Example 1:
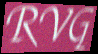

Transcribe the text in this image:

RVG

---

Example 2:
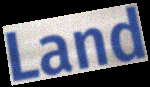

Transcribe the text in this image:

Land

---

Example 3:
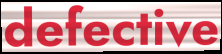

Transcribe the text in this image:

defective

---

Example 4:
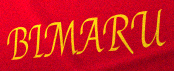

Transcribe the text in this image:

BIMARU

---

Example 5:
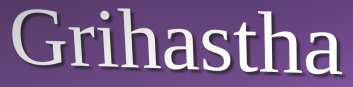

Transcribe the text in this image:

Grihastha